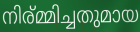
നിര്മ്മിച്ചതുമായ